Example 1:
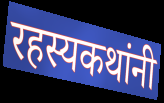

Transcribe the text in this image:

रहस्यकथांनी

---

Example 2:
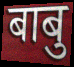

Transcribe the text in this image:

बाबु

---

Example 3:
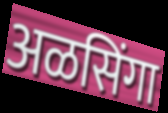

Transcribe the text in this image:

अळसिंगा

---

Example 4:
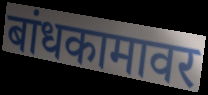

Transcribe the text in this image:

बांधकामावर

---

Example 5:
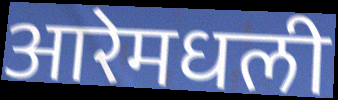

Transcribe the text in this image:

आरेमधली